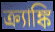
ক্র্যাঙ্কি